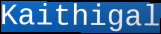
Kaithigal